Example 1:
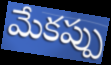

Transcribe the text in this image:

మేకప్పు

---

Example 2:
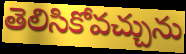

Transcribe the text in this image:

తెలిసికోవచ్చును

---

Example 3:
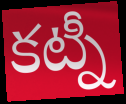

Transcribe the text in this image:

కట్నీ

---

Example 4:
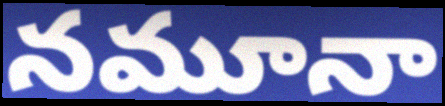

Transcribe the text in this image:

నమూనా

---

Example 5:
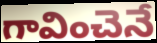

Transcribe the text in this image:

గావించెనే